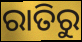
ରାତିରୁ